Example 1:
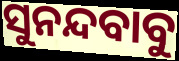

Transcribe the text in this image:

ସୁନନ୍ଦବାବୁ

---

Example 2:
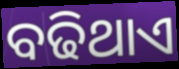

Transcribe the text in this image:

ବଢିଥାଏ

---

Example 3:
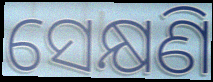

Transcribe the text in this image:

ସେକ୍ଷଣି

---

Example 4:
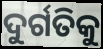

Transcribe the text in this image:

ଦୁର୍ଗତିକୁ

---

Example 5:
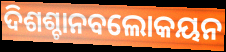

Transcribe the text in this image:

ଦିଶଶ୍ଚାନବଲୋକୟନ